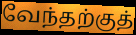
வேந்தற்குத்